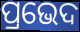
ପ୍ରଭେଦ